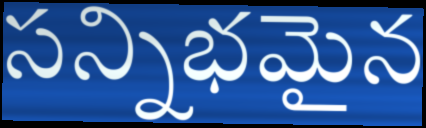
సన్నిభమైన